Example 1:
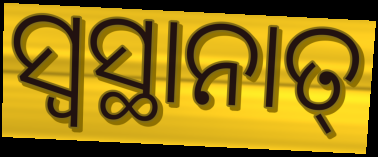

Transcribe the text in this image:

ସ୍ଵସ୍ଥାନାତ୍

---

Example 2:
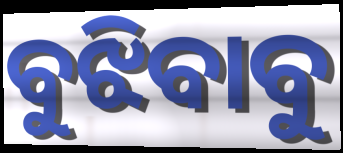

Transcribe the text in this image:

ବୁଝିବାବୁ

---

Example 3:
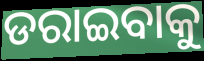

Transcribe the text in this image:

ଡରାଇବାକୁ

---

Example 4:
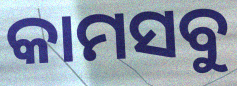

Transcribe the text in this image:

କାମସବୁ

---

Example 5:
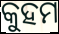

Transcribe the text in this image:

କୁହମ